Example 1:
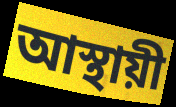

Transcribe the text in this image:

আস্থায়ী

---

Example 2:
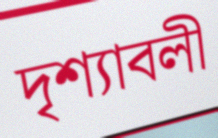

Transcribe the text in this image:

দৃশ্যাবলী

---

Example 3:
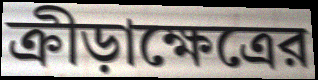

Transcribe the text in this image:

ক্রীড়াক্ষেত্রের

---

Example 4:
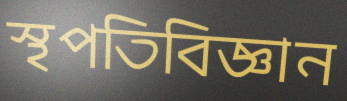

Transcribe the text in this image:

স্থপতিবিজ্ঞান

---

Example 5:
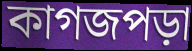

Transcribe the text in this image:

কাগজপড়া